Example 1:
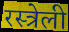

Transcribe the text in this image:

रस्त्रेली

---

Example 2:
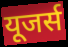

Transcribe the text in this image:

यूजर्स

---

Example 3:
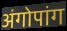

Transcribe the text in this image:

अंगोपांग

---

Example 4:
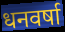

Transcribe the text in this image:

धनवर्षा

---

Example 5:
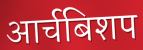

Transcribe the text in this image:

आर्चबिशप